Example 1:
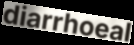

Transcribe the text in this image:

diarrhoeal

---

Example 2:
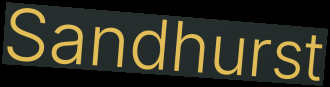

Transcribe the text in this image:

Sandhurst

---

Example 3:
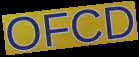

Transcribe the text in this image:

OFCD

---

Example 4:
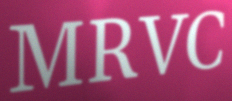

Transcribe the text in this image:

MRVC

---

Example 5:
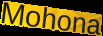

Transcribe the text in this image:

Mohona